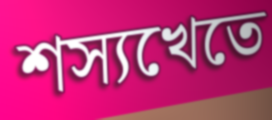
শস্যখেতে